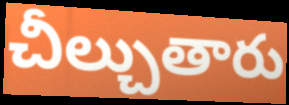
చీల్చుతారు